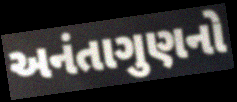
અનંતાગુણનો